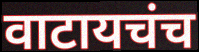
वाटायचंच